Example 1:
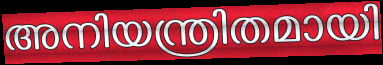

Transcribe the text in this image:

അനിയന്ത്രിതമായി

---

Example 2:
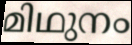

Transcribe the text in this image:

മിഥുനം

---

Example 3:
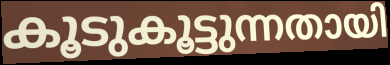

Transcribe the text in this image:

കൂടുകൂട്ടുന്നതായി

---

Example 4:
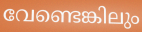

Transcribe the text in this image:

വേണ്ടെങ്കിലും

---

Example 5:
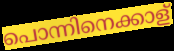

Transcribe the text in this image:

പൊന്നിനെക്കാള്